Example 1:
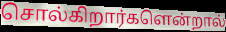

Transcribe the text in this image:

சொல்கிறார்களென்றால்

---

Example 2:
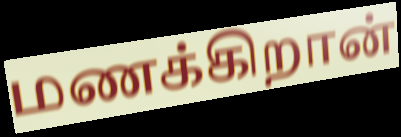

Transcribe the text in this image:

மணக்கிறான்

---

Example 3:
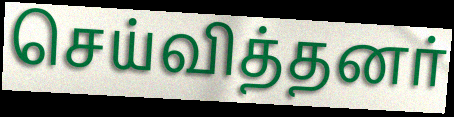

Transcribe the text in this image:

செய்வித்தனர்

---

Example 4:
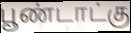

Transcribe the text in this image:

பூண்டாட்கு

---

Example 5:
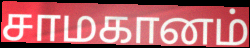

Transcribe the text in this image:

சாமகானம்